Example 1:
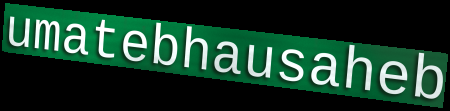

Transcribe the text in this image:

umatebhausaheb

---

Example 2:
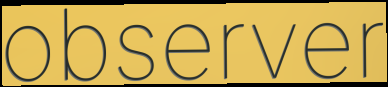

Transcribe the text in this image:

observer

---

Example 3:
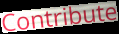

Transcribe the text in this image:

Contribute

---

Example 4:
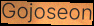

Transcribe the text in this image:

Gojoseon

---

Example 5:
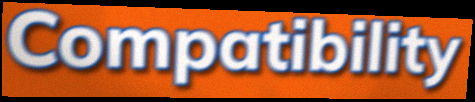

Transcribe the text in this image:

Compatibility